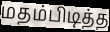
மதம்பிடித்த